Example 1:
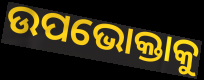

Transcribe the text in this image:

ଉପଭୋକ୍ତାକୁ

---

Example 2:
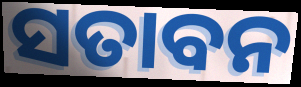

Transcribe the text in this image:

ସତାବନ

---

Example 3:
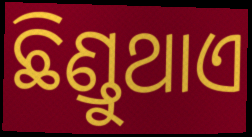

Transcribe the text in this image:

ଛିଣ୍ଡୁଥାଏ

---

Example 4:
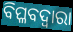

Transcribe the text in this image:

ବିପ୍ଳବଦ୍ୱାରା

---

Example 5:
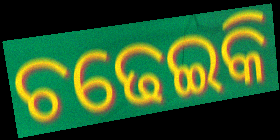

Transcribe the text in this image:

ଚଢେଇକି